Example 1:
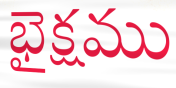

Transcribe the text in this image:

భైక్షము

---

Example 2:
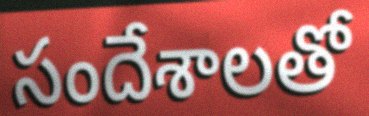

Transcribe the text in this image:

సందేశాలతో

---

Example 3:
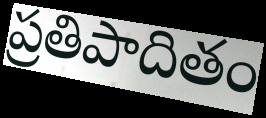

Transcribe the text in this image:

ప్రతిపాదితం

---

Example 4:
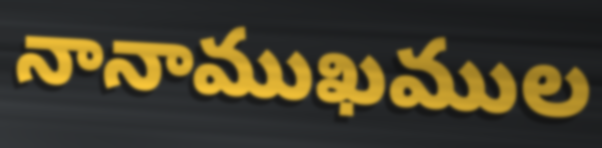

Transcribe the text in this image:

నానాముఖముల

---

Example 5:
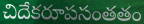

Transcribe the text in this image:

చిదేకరూపసంతతం